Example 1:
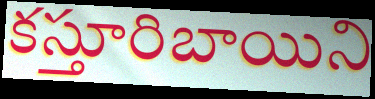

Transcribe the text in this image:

కస్తూరిబాయిని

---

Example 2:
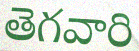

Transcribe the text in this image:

తెగవారి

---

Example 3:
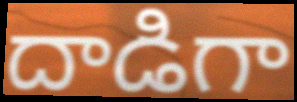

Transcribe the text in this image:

దాడిగా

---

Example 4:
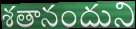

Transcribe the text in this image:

శతానందుని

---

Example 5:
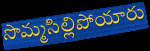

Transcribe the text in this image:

సొమ్మసిల్లిపోయారు